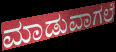
ಮಾಡುವಾಗಲೆ